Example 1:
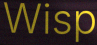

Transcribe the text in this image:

Wisp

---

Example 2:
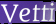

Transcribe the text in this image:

Vetti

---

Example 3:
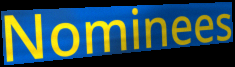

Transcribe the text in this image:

Nominees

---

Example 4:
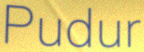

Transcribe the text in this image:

Pudur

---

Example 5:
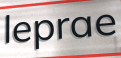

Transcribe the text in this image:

leprae